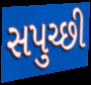
સપુચ્છી